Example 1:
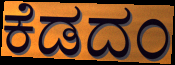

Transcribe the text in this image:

ಕೆಡದಂ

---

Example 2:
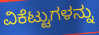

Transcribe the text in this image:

ವಿಕೆಟ್ಟುಗಳನ್ನು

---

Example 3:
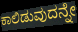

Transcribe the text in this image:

ಕಾಲಿಡುವುದನ್ನೇ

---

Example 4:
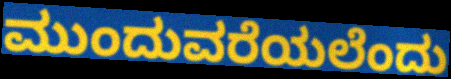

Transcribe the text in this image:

ಮುಂದುವರೆಯಲೆಂದು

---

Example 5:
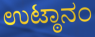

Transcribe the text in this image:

ಉಟ್ಠಾನಂ